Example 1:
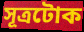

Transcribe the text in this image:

সূত্ৰটোক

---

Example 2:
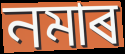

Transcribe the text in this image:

নমাৰ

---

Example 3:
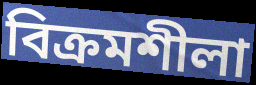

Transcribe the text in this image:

বিক্ৰমশীলা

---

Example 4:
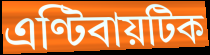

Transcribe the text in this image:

এণ্টিবায়টিক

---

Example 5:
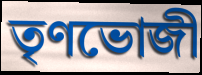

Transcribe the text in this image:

তৃণভোজী